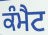
ਕੰਮੈਟ